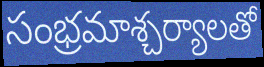
సంభ్రమాశ్చర్యాలతో